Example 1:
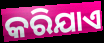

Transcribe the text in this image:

କରିଯାଏ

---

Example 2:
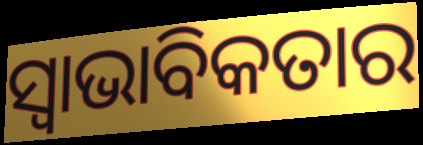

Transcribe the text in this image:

ସ୍ଵାଭାବିକତାର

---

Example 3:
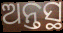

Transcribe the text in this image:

ଅନ୍ତସ୍ଥ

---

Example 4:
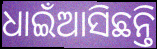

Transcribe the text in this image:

ଧାଇଁଆସିଛନ୍ତି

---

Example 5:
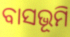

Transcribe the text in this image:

ବାସଭୂମି